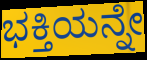
ಭಕ್ತಿಯನ್ನೇ